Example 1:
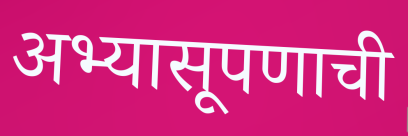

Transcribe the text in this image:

अभ्यासूपणाची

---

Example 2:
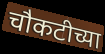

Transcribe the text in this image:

चौकटीच्या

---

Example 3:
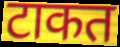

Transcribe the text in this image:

टाकत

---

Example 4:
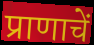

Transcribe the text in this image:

प्राणाचें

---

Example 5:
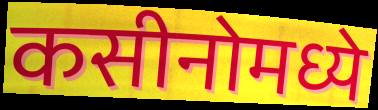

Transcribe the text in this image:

कसीनोमध्ये